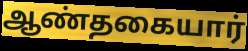
ஆண்தகையார்